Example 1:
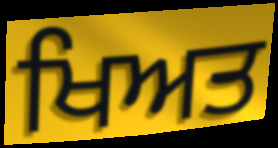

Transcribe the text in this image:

ਖਿਅਤ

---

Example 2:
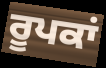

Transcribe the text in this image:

ਰੂਪਕਾਂ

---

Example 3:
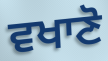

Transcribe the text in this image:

ਵਖਾਣੋ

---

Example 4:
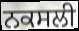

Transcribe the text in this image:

ਨਕਸਲੀ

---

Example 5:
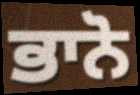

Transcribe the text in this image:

ਭਾਨੋ